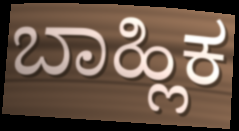
ಬಾಹ್ಲಿಕ